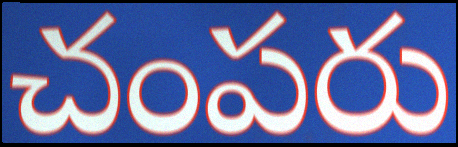
చంపరు